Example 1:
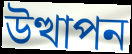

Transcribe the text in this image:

উত্থাপন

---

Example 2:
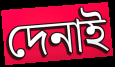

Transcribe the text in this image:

দেনাই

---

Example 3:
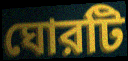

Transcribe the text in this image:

ঘোরটি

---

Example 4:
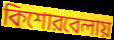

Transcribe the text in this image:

কিশোরবেলায়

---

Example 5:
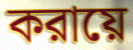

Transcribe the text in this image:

করায়ে